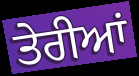
ਤੇਰੀਆਂ